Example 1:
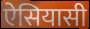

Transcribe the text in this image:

ऐसियासी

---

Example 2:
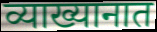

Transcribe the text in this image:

व्याख्यानात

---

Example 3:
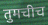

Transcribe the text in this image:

तुमचीच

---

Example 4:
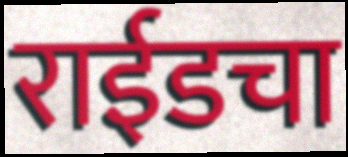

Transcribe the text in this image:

राईडचा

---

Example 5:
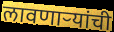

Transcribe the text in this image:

लावणाऱ्यांची